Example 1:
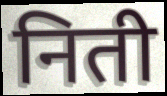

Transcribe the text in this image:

निती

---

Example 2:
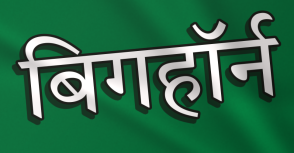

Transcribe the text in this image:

बिगहॉर्न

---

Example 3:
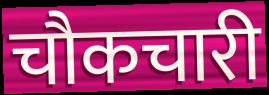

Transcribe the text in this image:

चौकचारी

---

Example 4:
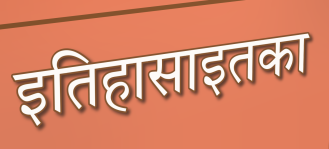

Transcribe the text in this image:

इतिहासाइतका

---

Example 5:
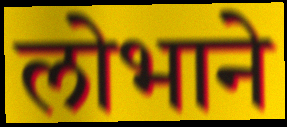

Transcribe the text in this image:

लोभाने